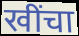
खींचा